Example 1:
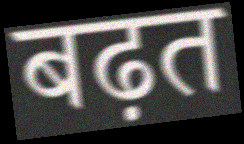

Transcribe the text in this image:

बढ़त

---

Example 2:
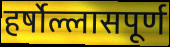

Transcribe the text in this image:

हर्षोल्लासपूर्ण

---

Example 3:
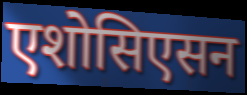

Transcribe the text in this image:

एशोसिएसन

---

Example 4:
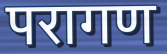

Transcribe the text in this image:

परागण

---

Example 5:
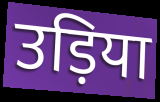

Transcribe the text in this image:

उड़िया